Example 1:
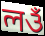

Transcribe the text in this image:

লওঁ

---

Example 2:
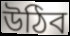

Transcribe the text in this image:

উঠিব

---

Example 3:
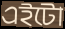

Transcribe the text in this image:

এইটো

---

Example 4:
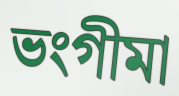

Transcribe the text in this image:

ভংগীমা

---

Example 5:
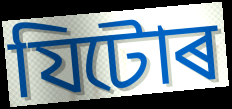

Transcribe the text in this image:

যিটোৰ